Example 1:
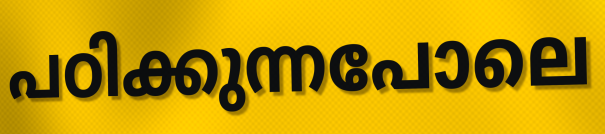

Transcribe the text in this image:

പഠിക്കുന്നപോലെ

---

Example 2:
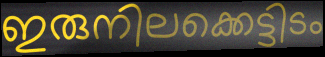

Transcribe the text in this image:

ഇരുനിലക്കെട്ടിടം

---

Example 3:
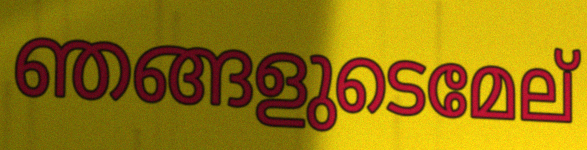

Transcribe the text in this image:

ഞങ്ങളുടെമേല്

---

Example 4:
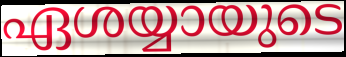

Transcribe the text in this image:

ഏശയ്യായുടെ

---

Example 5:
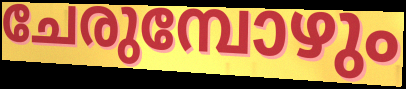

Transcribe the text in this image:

ചേരുമ്പോഴും